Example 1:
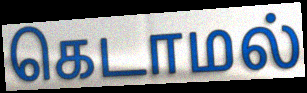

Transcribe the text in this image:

கெடாமல்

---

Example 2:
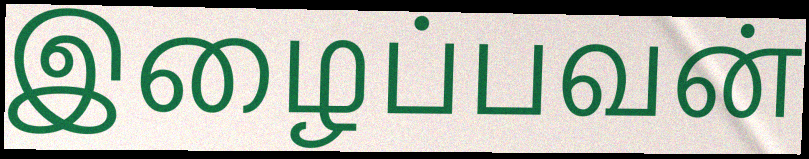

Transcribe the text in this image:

இழைப்பவன்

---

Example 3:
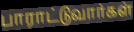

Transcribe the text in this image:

பாராட்டுவார்கள்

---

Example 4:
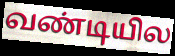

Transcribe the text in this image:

வண்டியில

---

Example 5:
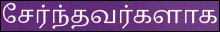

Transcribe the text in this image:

சேர்ந்தவர்களாக